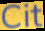
Cit